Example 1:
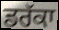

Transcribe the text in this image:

ਡਰੱਕਾ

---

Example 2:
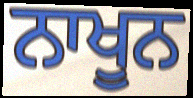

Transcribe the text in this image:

ਨਾਖੂਨ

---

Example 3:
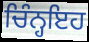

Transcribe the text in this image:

ਚਿੰਨ੍ਹਇਹ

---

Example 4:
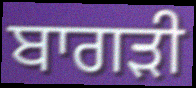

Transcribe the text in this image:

ਬਾਗੜੀ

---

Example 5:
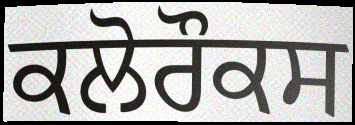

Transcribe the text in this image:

ਕਲੋਰੌਕਸ